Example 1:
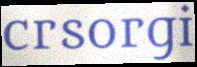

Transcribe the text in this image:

crsorgi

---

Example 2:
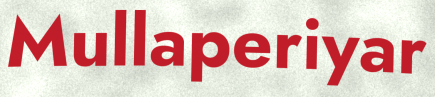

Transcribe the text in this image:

Mullaperiyar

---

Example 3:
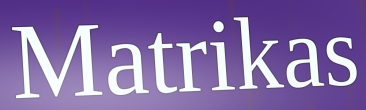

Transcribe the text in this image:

Matrikas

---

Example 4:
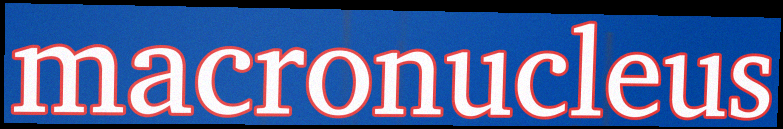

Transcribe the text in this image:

macronucleus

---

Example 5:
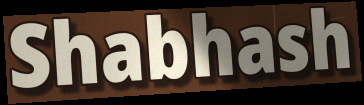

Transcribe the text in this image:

Shabhash